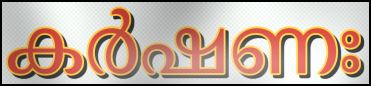
കർഷണഃ